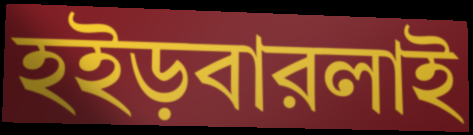
হইড়বারলাই